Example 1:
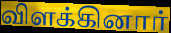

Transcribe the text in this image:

விளக்கினார்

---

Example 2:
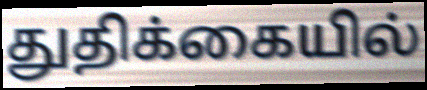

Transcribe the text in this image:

துதிக்கையில்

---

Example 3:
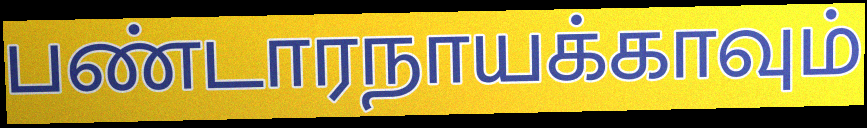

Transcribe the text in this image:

பண்டாரநாயக்காவும்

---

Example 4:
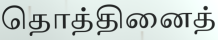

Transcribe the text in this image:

தொத்தினைத்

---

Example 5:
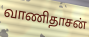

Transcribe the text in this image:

வாணிதாசன்